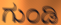
ಗುಂಡಿ